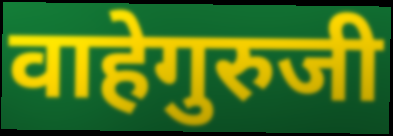
वाहेगुरुजी